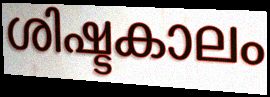
ശിഷ്ടകാലം